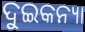
ଦୁଇକନ୍ୟା